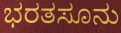
ಭರತಸೂನು